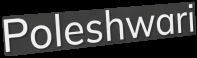
Poleshwari